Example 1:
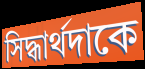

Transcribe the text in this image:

সিদ্ধার্থদাকে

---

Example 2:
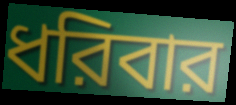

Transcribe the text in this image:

ধরিবার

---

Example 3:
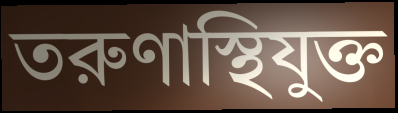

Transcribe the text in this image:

তরুণাস্থিযুক্ত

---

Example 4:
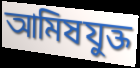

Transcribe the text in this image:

আমিষযুক্ত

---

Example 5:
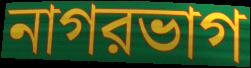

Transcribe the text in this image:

নাগরভাগ